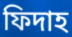
ফিদাহ